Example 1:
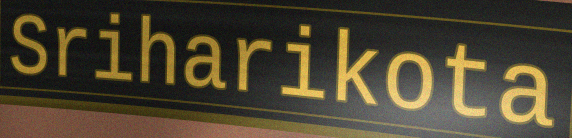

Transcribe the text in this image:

Sriharikota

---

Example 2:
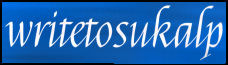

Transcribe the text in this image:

writetosukalp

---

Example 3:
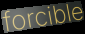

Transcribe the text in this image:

forcible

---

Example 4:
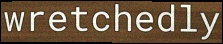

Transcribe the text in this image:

wretchedly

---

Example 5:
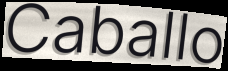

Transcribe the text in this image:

Caballo